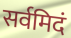
सर्वमिदं